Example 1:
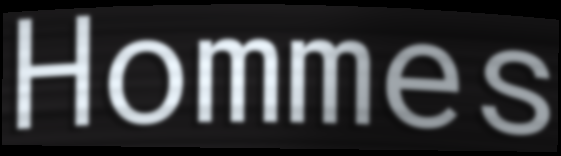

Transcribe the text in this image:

Hommes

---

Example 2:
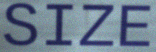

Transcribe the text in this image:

SIZE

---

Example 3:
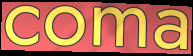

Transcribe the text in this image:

coma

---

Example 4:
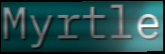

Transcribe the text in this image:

Myrtle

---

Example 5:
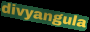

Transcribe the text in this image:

divyangula